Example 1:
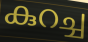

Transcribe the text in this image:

കുറച്ച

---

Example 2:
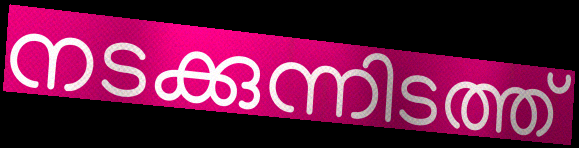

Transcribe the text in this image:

നടക്കുന്നിടത്ത്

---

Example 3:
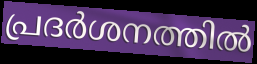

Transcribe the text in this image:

പ്രദർശനത്തിൽ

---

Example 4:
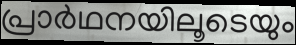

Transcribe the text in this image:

പ്രാർഥനയിലൂടെയും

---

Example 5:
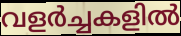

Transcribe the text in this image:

വളർച്ചകളിൽ